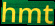
hmt